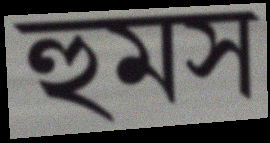
হুমস